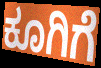
ಕೂಗಿಗೆ